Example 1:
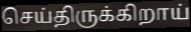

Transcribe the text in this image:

செய்திருக்கிறாய்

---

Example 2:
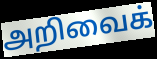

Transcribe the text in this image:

அறிவைக்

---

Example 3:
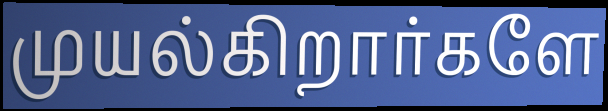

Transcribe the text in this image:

முயல்கிறார்களே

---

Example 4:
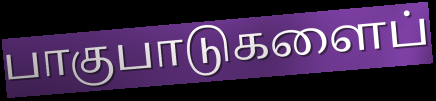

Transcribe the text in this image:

பாகுபாடுகளைப்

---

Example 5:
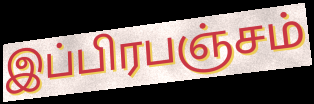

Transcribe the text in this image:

இப்பிரபஞ்சம்